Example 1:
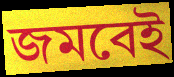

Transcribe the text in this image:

জমবেই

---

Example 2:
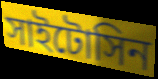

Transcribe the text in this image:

সাইটোসিন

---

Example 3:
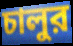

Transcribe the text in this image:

চালুর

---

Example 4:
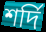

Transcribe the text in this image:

শর্দি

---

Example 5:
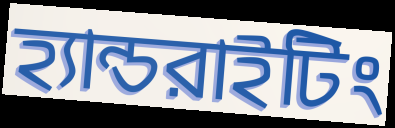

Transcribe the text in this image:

হ্যান্ডরাইটিং